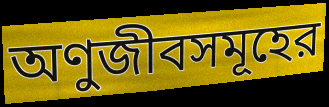
অণুজীবসমূহের